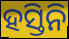
ହସ୍ତିନି